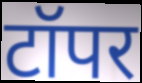
टॉपर